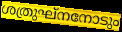
ശത്രുഘ്നനോടും